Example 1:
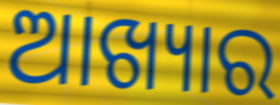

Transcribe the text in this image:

ଆଖ୍ୟାର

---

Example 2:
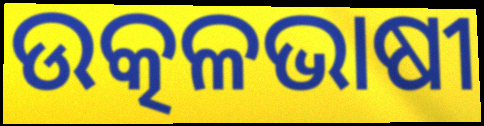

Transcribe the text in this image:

ଉତ୍କଳଭାଷୀ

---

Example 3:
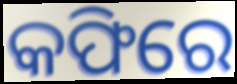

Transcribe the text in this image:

କଫିରେ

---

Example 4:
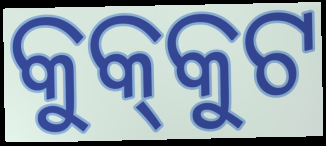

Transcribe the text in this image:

କୁକ୍‍କୁଟ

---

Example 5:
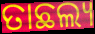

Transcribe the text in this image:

ତାଛଲ୍ୟ